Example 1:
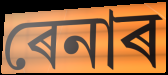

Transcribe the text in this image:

ৰেনাৰ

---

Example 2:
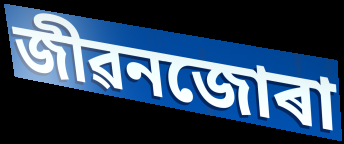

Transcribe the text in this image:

জীৱনজোৰা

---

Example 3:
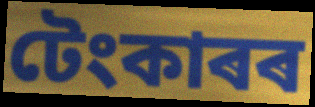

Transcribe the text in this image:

টেংকাৰৰ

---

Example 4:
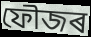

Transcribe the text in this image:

ফৌজৰ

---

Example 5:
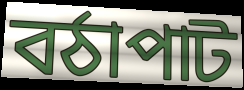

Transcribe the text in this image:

বঠাপাট